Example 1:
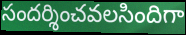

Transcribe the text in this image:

సందర్శించవలసిందిగా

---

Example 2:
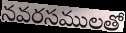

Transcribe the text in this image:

నవరసములతో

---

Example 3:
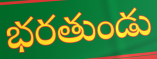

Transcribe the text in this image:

భరతుండు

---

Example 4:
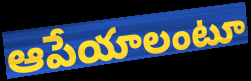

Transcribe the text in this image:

ఆపేయాలంటూ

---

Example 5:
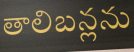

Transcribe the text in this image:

తాలిబన్లను